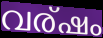
വര്ഷം